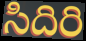
సిదిరి